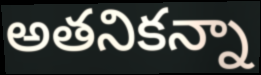
అతనికన్నా